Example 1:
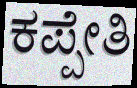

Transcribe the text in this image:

ಕಪ್ಪೇತಿ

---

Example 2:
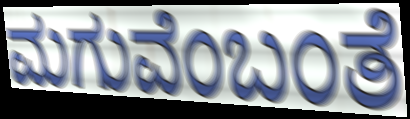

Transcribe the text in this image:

ಮಗುವೆಂಬಂತೆ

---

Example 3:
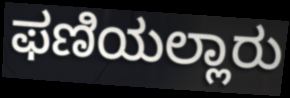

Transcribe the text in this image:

ಫಣಿಯಲ್ಲಾರು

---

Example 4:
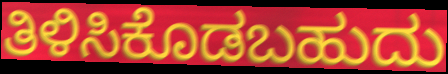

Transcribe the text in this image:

ತಿಳಿಸಿಕೊಡಬಹುದು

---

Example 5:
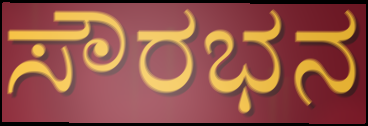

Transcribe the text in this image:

ಸೌರಭನ